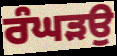
ਰੰਘੜਉ